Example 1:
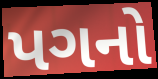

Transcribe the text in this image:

પગનો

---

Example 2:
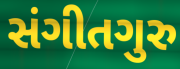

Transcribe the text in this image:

સંગીતગુરુ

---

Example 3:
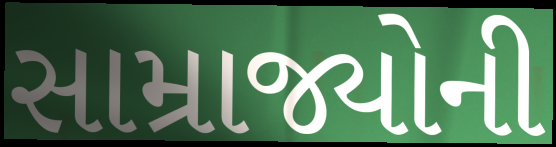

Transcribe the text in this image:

સામ્રાજ્યોની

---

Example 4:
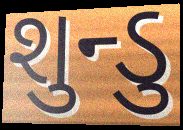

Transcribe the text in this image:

શુન્ડુ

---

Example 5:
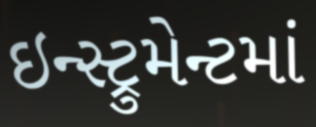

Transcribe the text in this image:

ઇન્સ્ટ્રુમેન્ટમાં